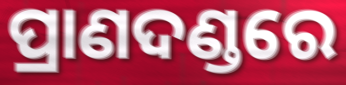
ପ୍ରାଣଦଣ୍ଡରେ